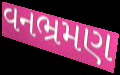
વનભ્રમણ